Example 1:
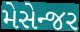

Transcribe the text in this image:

મેસેન્જર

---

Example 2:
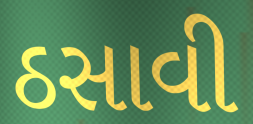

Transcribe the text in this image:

ઠસાવી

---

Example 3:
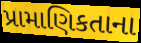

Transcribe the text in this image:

પ્રામાણિકતાના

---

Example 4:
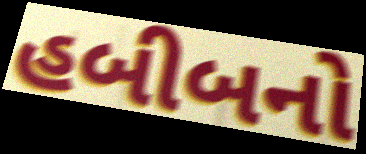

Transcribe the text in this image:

હબીબનો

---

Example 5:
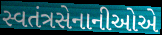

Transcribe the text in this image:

સ્વતંત્રસેનાનીઓએ